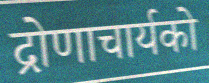
द्रोणाचार्यको